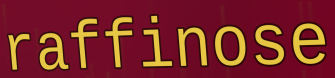
raffinose